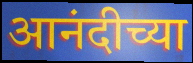
आनंदीच्या